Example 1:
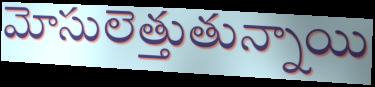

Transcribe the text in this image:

మోసులెత్తుతున్నాయి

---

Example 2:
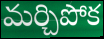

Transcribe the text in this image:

మర్చిపోక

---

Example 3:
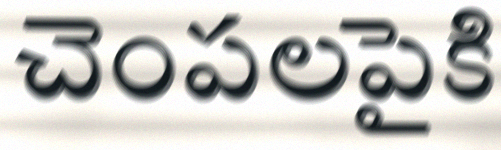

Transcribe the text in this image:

చెంపలపైకి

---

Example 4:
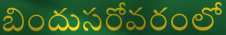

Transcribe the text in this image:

బిందుసరోవరంలో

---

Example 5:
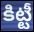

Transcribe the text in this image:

కిట్టీ